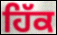
ਹਿੱਕ